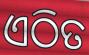
ଏଠିତ